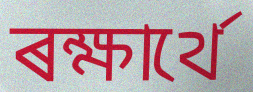
ৰক্ষাৰ্থে